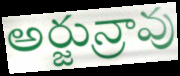
అర్జున్రావు